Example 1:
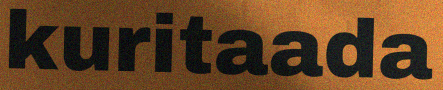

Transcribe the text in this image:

kuritaada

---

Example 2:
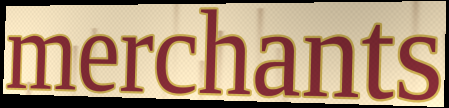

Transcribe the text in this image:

merchants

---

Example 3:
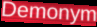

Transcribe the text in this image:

Demonym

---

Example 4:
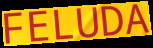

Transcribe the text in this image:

FELUDA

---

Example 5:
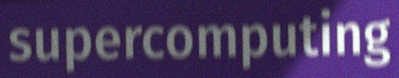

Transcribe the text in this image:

supercomputing